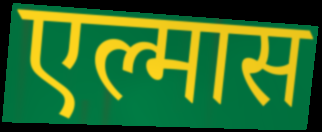
एल्मास